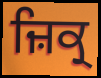
ਜ਼ਿਕ੍ਰ